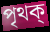
পৃথক্